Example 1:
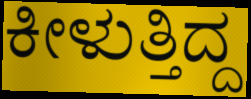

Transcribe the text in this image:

ಕೀಳುತ್ತಿದ್ದ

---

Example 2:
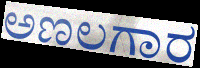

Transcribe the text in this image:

ಅಣಲಗಾರ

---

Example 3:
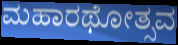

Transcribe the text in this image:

ಮಹಾರಥೋತ್ಸವ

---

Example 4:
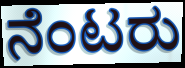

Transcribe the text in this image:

ನೆಂಟರು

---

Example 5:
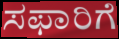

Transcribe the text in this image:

ಸಫಾರಿಗೆ